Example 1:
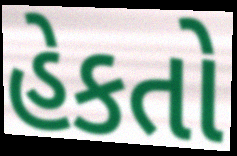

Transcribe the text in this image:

હેકતો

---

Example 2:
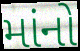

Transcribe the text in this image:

માંનો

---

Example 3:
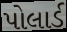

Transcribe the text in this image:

પોલાર્ડ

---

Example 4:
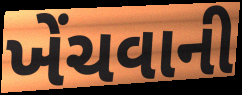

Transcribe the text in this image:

ખેંચવાની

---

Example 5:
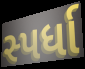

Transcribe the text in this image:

સ્પર્ધા